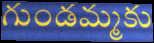
గుండమ్మకు